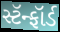
સ્ટૅન્ફૉર્ડ